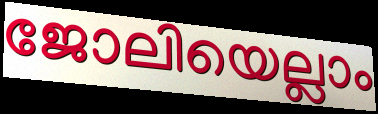
ജോലിയെല്ലാം